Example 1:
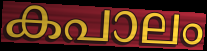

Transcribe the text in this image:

കപാലം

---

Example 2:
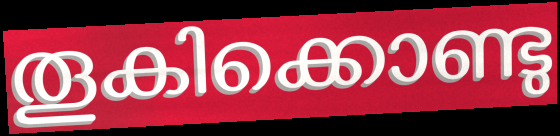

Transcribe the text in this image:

തൂകിക്കൊണ്ടു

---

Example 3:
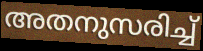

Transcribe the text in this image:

അതനുസരിച്ച്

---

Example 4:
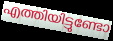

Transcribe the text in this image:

എത്തിയിട്ടുണ്ടോ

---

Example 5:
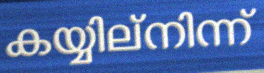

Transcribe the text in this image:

കയ്യില്നിന്ന്